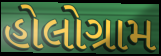
હોલોગ્રામ